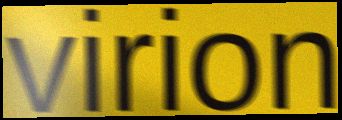
virion